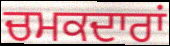
ਚਮਕਦਾਰਾਂ